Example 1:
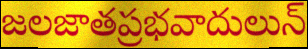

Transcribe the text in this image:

జలజాతప్రభవాదులున్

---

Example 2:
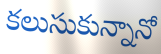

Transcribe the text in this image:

కలుసుకున్నానో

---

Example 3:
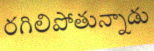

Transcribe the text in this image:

రగిలిపోతున్నాడు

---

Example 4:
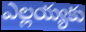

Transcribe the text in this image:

ఎల్లయ్యకు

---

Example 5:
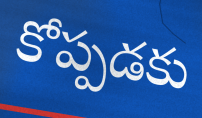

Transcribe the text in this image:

కోప్పడకు